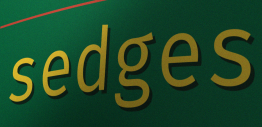
sedges